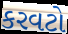
કરવટો